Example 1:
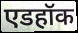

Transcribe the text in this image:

एडहॉक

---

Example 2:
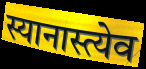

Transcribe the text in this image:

स्यानास्त्येव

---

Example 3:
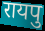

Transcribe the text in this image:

रायपु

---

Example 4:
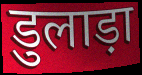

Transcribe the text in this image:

डुलाड़ा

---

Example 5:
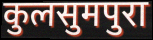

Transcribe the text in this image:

कुलसुमपुरा